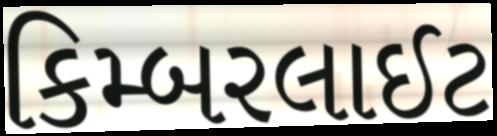
કિમ્બરલાઈટ